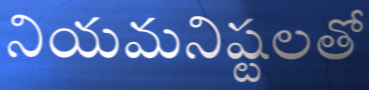
నియమనిష్టలతో